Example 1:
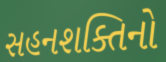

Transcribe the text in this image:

સહનશક્તિનો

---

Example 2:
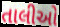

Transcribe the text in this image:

તાલીઓ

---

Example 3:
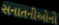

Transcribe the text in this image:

સનાતનીઓનો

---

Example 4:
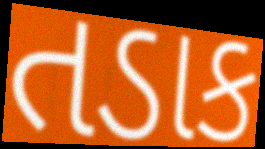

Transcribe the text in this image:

તડાક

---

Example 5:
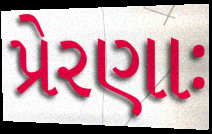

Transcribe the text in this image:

પ્રેરણાઃ